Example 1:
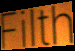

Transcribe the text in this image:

Filth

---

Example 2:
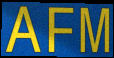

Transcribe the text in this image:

AFM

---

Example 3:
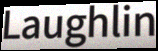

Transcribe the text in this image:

Laughlin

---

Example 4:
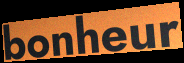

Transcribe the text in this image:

bonheur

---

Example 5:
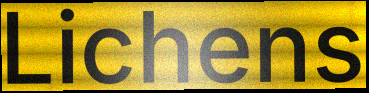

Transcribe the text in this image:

Lichens